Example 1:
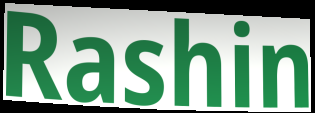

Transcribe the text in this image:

Rashin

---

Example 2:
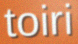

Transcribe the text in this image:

toiri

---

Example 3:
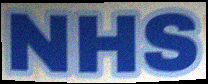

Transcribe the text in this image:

NHS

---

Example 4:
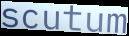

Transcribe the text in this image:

scutum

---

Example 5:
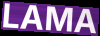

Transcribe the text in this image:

LAMA